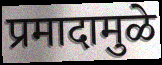
प्रमादामुळे